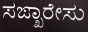
ಸಙ್ಖಾರೇಸು